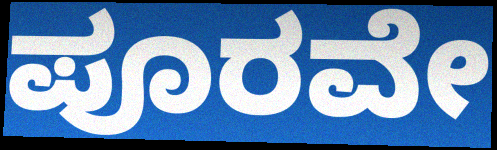
ಪೂರವೇ